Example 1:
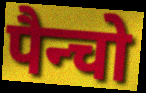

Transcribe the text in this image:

पैन्चो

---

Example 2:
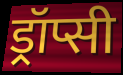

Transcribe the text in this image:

ड्रॉप्सी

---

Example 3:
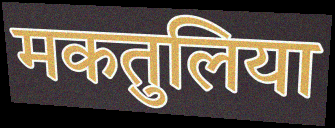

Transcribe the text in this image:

मकतुलिया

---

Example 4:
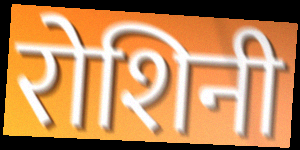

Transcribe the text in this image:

रोशिनी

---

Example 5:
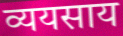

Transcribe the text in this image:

व्ययसाय